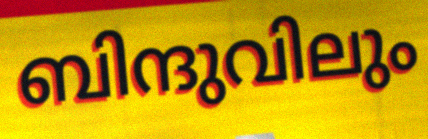
ബിന്ദുവിലും